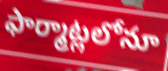
ఫార్మాట్లలోనూ